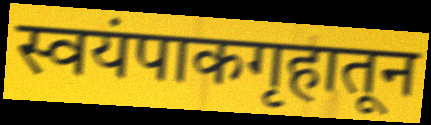
स्वयंपाकगृहातून